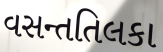
વસન્તતિલકા